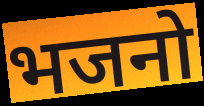
भजनो